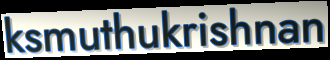
ksmuthukrishnan